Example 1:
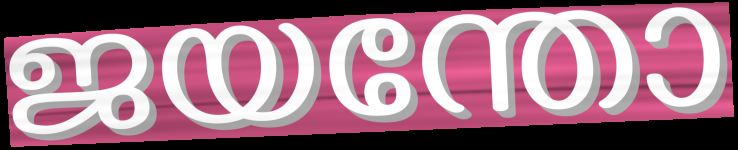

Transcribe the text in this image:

ജയന്തോ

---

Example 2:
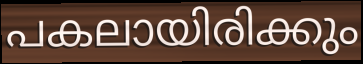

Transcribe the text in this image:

പകലായിരിക്കും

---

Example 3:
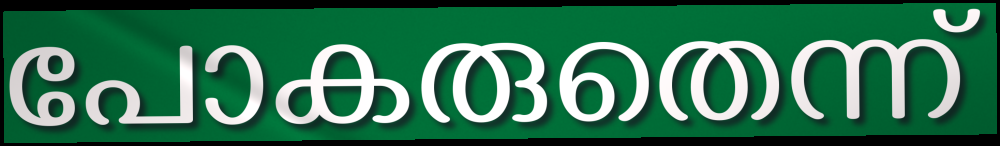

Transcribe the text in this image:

പോകരുതെന്ന്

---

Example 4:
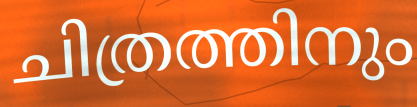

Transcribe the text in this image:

ചിത്രത്തിനും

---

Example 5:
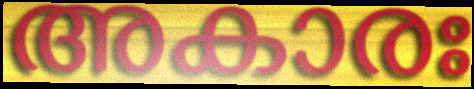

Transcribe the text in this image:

അകാരഃ